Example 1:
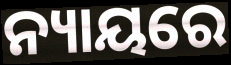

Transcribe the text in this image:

ନ୍ୟାୟରେ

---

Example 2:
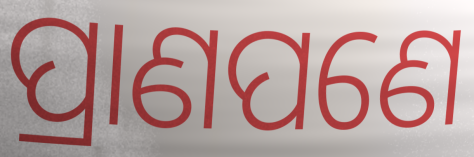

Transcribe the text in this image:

ପ୍ରାଣପଣେ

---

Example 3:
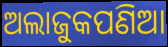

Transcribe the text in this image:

ଅଲାଜୁକପଣିଆ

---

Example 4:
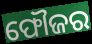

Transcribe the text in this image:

ଫୌଜର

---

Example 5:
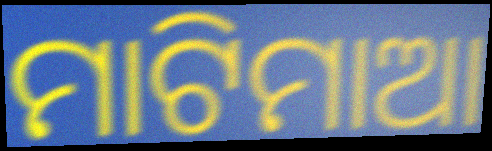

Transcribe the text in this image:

ମାଟିମାଆ